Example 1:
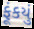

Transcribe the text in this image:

ફૂંકયું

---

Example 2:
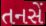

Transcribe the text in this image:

તનસેં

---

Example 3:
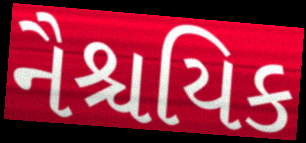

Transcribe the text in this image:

નૈશ્ચયિક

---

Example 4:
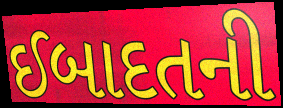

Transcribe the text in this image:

ઈબાદતની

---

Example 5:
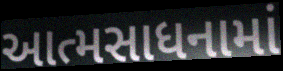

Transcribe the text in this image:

આત્મસાધનામાં